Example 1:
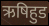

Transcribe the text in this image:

ऋषिहुड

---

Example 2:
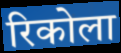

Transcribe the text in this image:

रिकोला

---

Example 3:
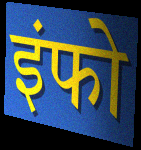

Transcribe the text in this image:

इंफो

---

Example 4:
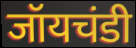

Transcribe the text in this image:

जॉयचंडी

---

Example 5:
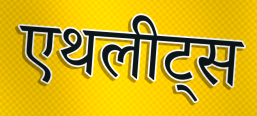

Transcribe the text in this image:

एथलीट्स